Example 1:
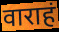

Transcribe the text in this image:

वाराहं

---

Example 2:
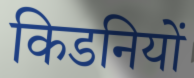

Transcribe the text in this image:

किडनियों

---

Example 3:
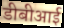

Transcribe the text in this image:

डीबीआई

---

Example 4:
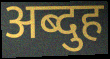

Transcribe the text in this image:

अब्दुह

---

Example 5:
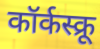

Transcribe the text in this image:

कॉर्कस्क्रू